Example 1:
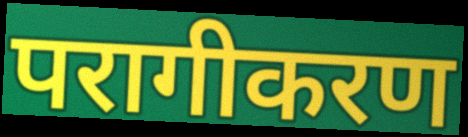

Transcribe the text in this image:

परागीकरण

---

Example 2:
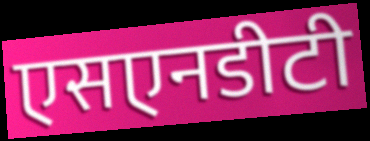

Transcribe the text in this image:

एसएनडीटी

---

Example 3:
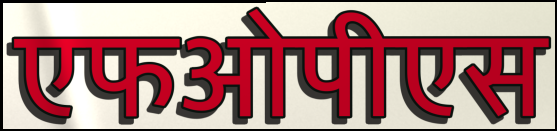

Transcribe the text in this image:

एफओपीएस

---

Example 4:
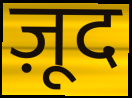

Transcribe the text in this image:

ज़ूद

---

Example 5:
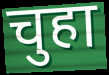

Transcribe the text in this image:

चुहा